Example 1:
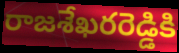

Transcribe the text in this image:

రాజశేఖరరెడ్డికి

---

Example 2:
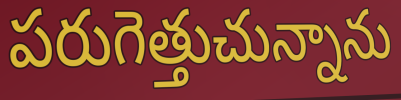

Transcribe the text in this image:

పరుగెత్తుచున్నాను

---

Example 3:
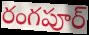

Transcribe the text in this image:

రంగపూర్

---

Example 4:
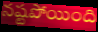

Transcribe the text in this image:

నష్టపోయింది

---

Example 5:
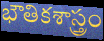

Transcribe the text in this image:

భౌతికశాస్త్రం